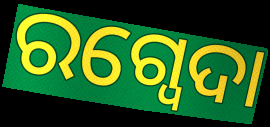
ରଗ୍ବେଦା